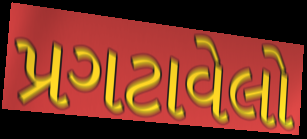
પ્રગટાવેલો